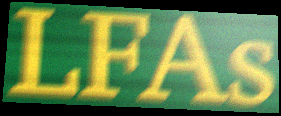
LFAs